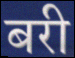
बरी